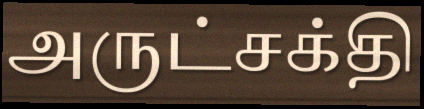
அருட்சக்தி